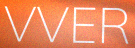
VVER